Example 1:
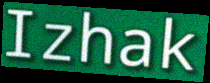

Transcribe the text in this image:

Izhak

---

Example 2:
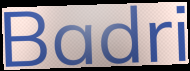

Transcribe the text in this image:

Badri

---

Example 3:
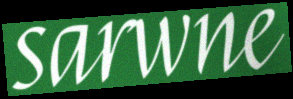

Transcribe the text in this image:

sarwne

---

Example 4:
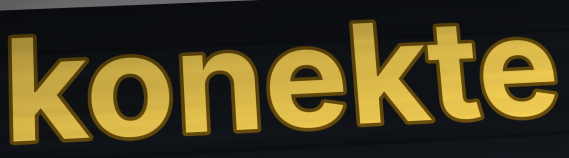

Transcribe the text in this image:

konekte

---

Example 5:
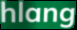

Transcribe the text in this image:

hlang